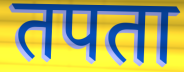
तपता